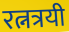
रत्नत्रयी